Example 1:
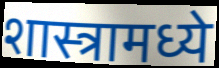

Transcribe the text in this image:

शास्त्रामध्ये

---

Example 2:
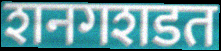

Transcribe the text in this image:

शनगशडत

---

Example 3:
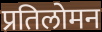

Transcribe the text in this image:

प्रतिलोमन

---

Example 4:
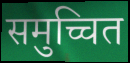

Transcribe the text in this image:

समुच्चित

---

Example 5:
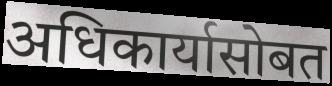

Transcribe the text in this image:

अधिकार्यासोबत